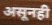
असूनही